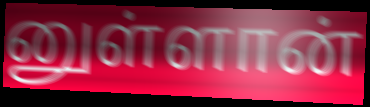
னுள்ளான்